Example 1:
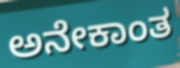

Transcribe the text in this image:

ಅನೇಕಾಂತ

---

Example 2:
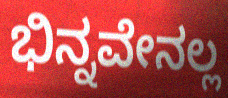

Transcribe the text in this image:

ಭಿನ್ನವೇನಲ್ಲ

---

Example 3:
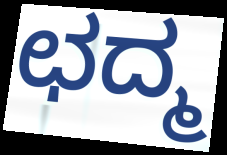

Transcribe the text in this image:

ಛದ್ಮ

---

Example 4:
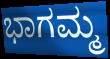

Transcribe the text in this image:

ಭಾಗಮ್ಮ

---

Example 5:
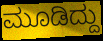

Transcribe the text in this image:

ಮೂಡಿದ್ದು